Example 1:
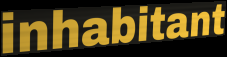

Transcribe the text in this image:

inhabitant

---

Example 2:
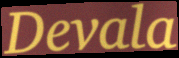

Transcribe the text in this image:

Devala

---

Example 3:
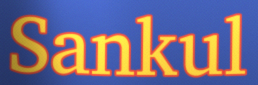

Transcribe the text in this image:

Sankul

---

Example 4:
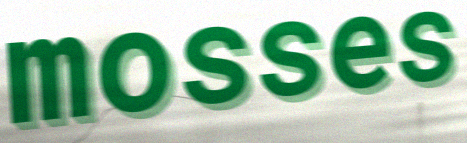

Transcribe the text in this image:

mosses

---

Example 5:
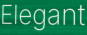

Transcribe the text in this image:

Elegant